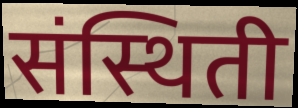
संस्थिती